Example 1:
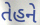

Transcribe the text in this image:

તેહને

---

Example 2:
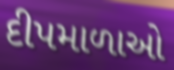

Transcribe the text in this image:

દીપમાળાઓ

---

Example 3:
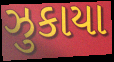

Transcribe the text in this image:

ઝુકાયા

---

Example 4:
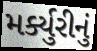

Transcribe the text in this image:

મર્ક્યુરીનું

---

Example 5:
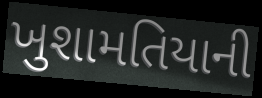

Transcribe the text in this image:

ખુશામતિયાની